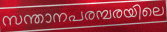
സന്താനപരമ്പരയിലെ